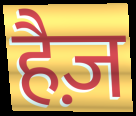
हैज़